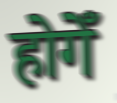
होगेँ